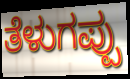
ತೆಳುಗಪ್ಪು